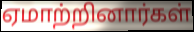
ஏமாற்றினார்கள்